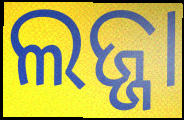
ଲଜ୍ଜା